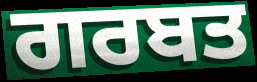
ਗਰਬਤ